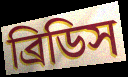
ব্রিডিস